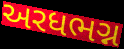
અરધભગ્ન